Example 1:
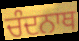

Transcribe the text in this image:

ਚੰਦਨਾਥ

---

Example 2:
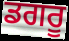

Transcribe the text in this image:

ਡਗਰੂ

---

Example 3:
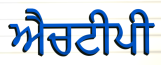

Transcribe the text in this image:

ਐਚਟੀਪੀ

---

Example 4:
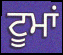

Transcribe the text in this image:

ਟੂਮਾਂ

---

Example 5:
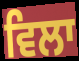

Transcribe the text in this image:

ਵਿਲਾ